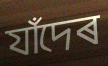
যাঁদেৰ